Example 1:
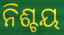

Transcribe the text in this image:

ନିଶ୍ଚୟ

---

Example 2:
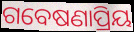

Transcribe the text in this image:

ଗବେଷଣାପ୍ରିୟ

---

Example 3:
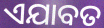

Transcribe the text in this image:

ଏଯାବତ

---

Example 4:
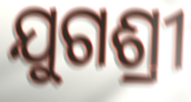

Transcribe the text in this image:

ଯୁଗଶ୍ରୀ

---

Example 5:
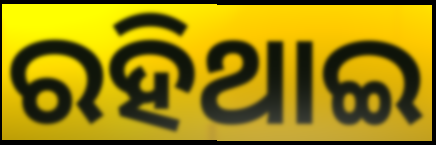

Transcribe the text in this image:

ରହିଥାଇ